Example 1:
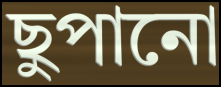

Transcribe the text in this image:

ছুপানো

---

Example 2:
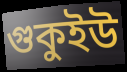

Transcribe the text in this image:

গুকুইউ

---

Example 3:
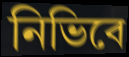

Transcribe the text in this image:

নিভিবে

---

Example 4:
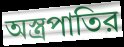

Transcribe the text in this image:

অস্ত্রপাতির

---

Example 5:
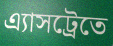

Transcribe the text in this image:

এ্যাসট্রেতে